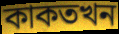
কাকতখন